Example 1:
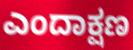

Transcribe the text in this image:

ಎಂದಾಕ್ಷಣ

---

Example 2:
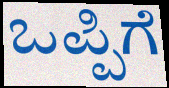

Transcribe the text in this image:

ಒಪ್ಪಿಗೆ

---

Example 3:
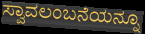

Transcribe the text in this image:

ಸ್ವಾವಲಂಬನೆಯನ್ನೂ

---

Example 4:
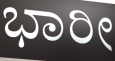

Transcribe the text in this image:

ಭಾರೀ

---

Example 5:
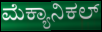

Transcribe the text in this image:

ಮೆಕ್ಯಾನಿಕಲ್